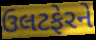
ઉલટફેરને